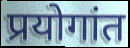
प्रयोगांत